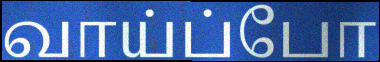
வாய்ப்போ